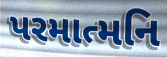
પરમાત્મનિ